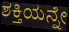
ಶಕ್ತಿಯನ್ನೇ